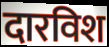
दारविश